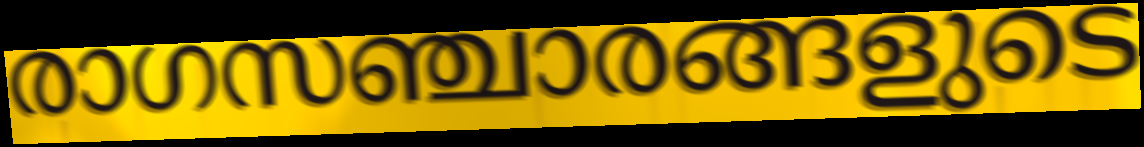
രാഗസഞ്ചാരങ്ങളുടെ